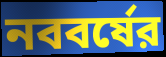
নববর্ষের